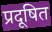
प्रदूषित